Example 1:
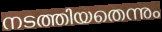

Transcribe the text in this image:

നടത്തിയതെന്നും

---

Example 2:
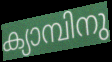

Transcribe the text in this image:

ക്യാമ്പിനു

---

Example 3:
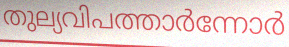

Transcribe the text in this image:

തുല്യവിപത്താർന്നോർ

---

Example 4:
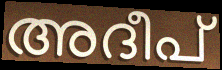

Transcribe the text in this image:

അദീപ്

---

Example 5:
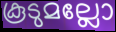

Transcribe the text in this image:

കൂടുമല്ലോ